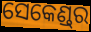
ସେକେଣ୍ଡ୍‌ର